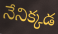
నేనిక్కడ